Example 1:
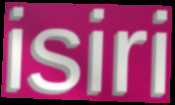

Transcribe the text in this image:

isiri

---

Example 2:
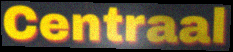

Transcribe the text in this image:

Centraal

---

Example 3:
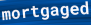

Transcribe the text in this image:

mortgaged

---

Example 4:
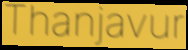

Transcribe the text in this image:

Thanjavur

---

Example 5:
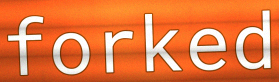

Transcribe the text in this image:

forked